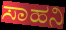
ಸಾಹನಿ